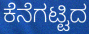
ಕೆನೆಗಟ್ಟಿದ